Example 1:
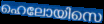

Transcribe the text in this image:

ഹെലോയിസെ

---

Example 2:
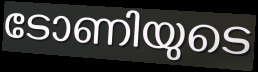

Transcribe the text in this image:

ടോണിയുടെ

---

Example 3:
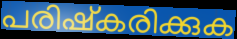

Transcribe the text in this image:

പരിഷ്കരിക്കുക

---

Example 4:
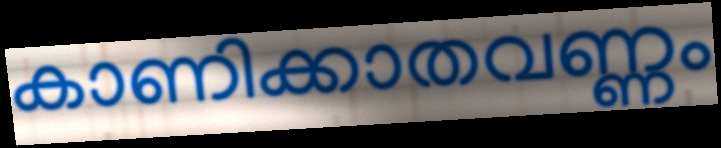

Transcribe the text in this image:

കാണിക്കാതവണ്ണം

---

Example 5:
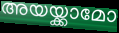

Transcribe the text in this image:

അയയ്ക്കാമോ